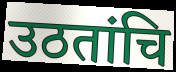
उठतांचि